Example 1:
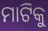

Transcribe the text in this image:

ମାଟିକୁ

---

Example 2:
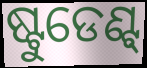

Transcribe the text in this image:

ଷ୍ଟୁଡେଣ୍ଟ୍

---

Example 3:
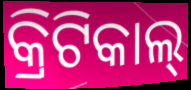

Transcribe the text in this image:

କ୍ରିଟିକାଲ୍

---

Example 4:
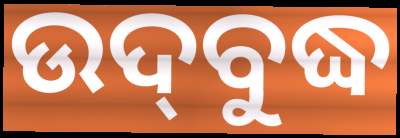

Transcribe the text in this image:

ଉଦ୍‌ବୁଦ୍ଧ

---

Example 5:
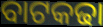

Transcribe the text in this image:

ବାଟକଢା